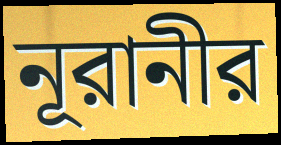
নূরানীর